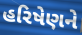
હરિષેણને